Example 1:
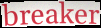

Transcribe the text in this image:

breaker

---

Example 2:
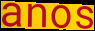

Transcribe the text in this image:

anos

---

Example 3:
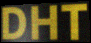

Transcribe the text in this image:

DHT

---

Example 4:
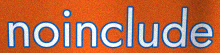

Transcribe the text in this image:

noinclude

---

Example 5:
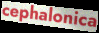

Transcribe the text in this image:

cephalonica